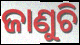
ଜାଣୁଚି